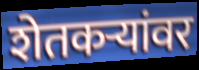
शेतकर्‍यांवर